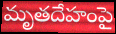
మృతదేహంపై